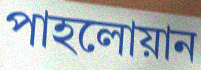
পাহলোয়ান